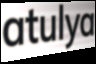
atulya